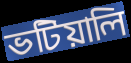
ভটিয়ালি